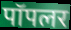
पॉपलर